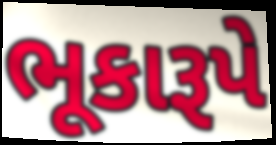
ભૂકારૂપે